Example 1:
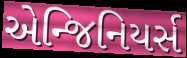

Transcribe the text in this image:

એન્જિનિયર્સ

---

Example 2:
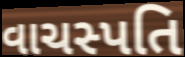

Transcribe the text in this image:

વાચસ્પતિ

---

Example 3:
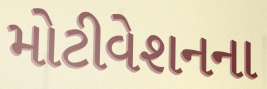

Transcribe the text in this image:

મોટીવેશનના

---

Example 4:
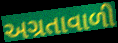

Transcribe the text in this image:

અગ્રતાવાળી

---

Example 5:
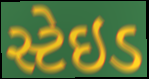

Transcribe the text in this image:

સ્ટેઇડ